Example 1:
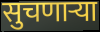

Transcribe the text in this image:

सुचणाऱ्या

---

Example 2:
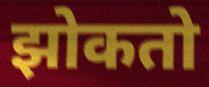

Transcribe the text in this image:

झोकतो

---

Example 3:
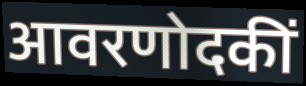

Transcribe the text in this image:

आवरणोदकीं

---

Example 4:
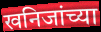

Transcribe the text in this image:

खनिजांच्या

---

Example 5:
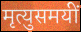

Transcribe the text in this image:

मृत्युसमयीं